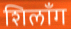
शिलाँग